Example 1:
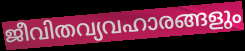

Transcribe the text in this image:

ജീവിതവ്യവഹാരങ്ങളും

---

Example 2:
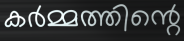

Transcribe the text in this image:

കർമ്മത്തിന്റെ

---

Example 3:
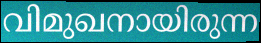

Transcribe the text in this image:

വിമുഖനായിരുന്ന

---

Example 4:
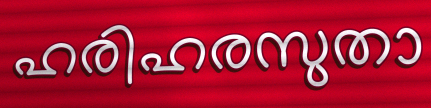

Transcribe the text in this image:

ഹരിഹരസുതാ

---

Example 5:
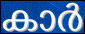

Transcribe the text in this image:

കാർ